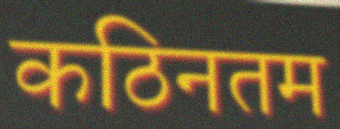
कठिनतम